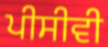
ਪੀਸੀਵੀ